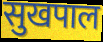
सुखपाल